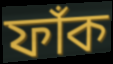
ফাঁক